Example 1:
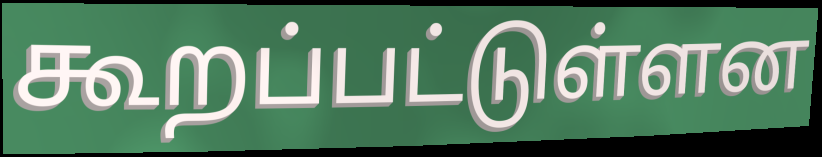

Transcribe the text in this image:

கூறப்பட்டுள்ளன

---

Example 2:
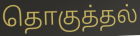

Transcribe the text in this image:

தொகுத்தல்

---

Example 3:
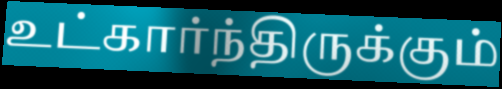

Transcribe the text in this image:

உட்கார்ந்திருக்கும்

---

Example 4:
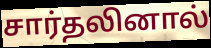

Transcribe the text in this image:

சார்தலினால்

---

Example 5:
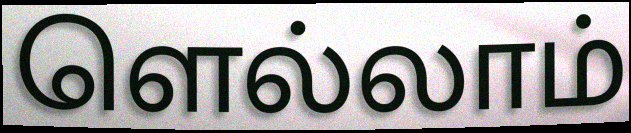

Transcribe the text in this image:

ளெல்லாம்